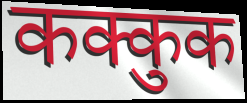
कक्कुक